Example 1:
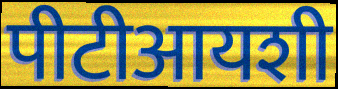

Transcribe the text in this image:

पीटीआयशी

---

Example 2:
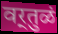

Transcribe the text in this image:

वर्तुळं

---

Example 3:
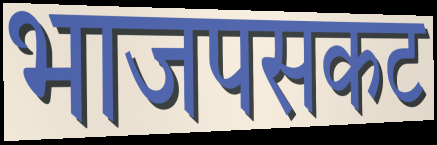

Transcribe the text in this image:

भाजपसकट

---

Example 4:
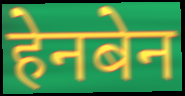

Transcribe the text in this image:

हेनबेन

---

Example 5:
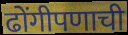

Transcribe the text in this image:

ढोंगीपणाची